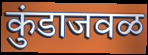
कुंडाजवळ